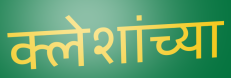
क्लेशांच्या